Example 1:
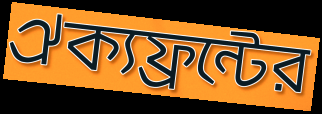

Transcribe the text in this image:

ঐক্যফ্রন্টের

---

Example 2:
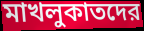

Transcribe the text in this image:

মাখলুকাতদের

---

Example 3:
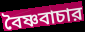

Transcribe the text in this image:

বৈষ্ণবাচার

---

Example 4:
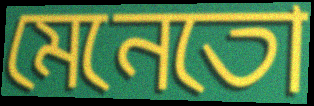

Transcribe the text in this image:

মেনেতো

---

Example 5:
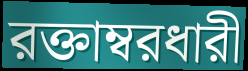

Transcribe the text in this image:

রক্তাম্বরধারী